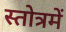
स्तोत्रमें